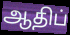
ஆதிப்